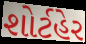
શોર્ટહેર